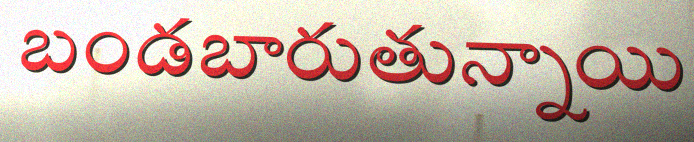
బండబారుతున్నాయి